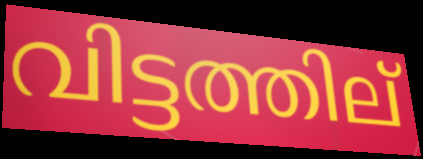
വിട്ടത്തില്